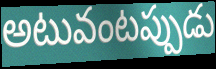
అటువంటప్పుడు